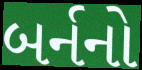
બર્નનો